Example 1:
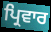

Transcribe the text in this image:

ਪ੍ਰਿਵਾਰ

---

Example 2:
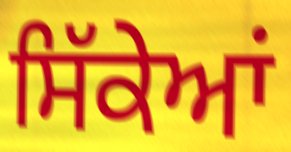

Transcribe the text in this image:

ਸਿੱਕੇਆਂ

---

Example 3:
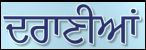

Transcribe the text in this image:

ਦਰਾਣੀਆਂ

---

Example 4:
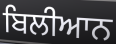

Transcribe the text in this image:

ਬਿਲੀਆਨ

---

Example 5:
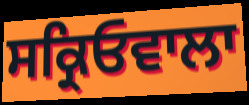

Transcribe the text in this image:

ਸਕ੍ਰਿਓਵਾਲਾ